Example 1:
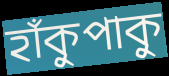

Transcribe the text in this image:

হাঁকুপাকু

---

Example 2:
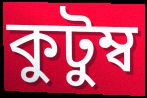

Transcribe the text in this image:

কুটুম্ব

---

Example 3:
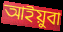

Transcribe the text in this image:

আইয়ুবা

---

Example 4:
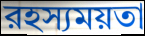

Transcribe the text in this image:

রহস্যময়তা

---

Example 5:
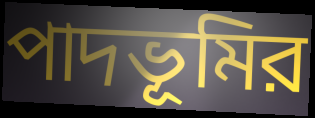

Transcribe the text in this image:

পাদভূমির